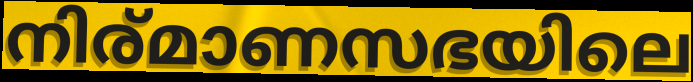
നിര്മാണസഭയിലെ